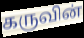
கருவின்